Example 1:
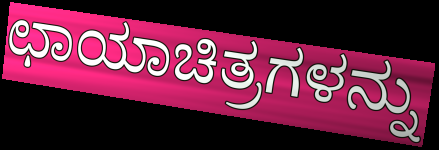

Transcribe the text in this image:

ಛಾಯಾಚಿತ್ರಗಳನ್ನು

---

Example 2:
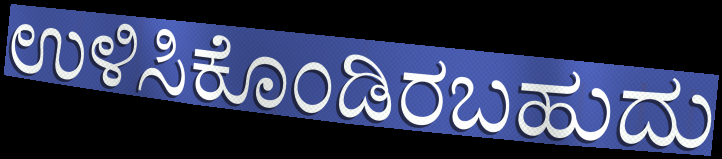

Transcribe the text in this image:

ಉಳಿಸಿಕೊಂಡಿರಬಹುದು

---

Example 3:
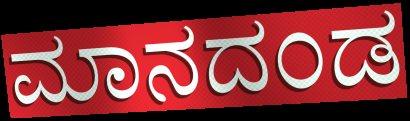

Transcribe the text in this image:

ಮಾನದಂಡ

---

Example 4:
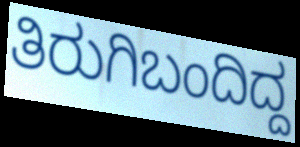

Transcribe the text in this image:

ತಿರುಗಿಬಂದಿದ್ದ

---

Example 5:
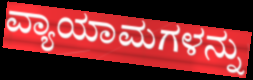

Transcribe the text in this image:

ವ್ಯಾಯಾಮಗಳನ್ನು